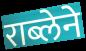
राब्लेने